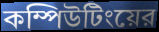
কম্পিউটিংয়ের